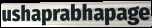
ushaprabhapage